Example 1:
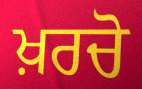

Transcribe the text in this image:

ਖ਼ਰਚੋ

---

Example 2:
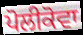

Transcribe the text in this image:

ਪੋਲੀਕੋਵਾ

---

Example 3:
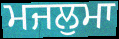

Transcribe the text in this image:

ਮਜਲੁਮਾ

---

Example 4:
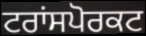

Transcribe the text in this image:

ਟਰਾਂਸਪੋਰਕਟ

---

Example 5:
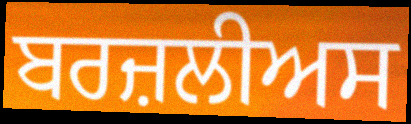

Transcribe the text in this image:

ਬਰਜ਼ਲੀਅਸ